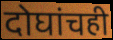
दोघांचही